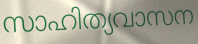
സാഹിത്യവാസന